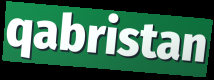
qabristan